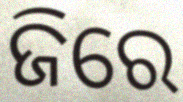
ଜିରେ